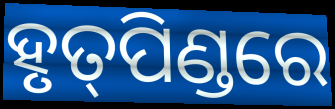
ହୃତ୍‌ପିଣ୍ଡରେ